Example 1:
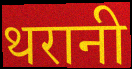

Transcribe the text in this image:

थरानी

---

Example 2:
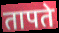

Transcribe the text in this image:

तापते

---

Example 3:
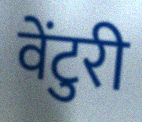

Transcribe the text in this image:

वेंटुरी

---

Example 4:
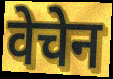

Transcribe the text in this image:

वेचेन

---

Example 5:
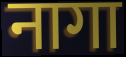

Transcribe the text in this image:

नागा